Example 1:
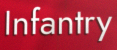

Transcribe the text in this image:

Infantry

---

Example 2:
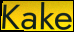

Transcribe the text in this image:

Kake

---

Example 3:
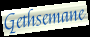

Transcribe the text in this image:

Gethsemane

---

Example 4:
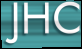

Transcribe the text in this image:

JHC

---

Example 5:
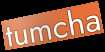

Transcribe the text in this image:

tumcha